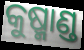
କୁଷ୍ମାଣ୍ଡ